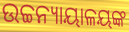
ଉଚ୍ଚନ୍ୟାୟାଳୟଙ୍କ